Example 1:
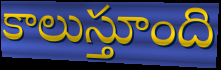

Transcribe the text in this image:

కాలుస్తూంది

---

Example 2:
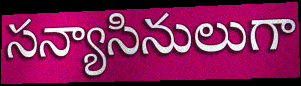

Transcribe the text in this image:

సన్యాసినులుగా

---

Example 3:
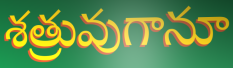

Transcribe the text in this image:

శత్రువుగానూ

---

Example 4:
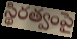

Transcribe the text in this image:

స్థిరత్వంపై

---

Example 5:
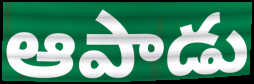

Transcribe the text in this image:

ఆపాడు